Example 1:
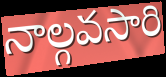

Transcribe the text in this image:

నాల్గవసారి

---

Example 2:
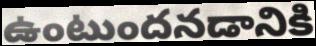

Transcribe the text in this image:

ఉంటుందనడానికి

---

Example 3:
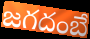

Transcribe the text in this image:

జగదంబే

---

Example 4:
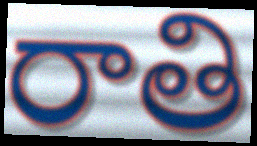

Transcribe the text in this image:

రాతి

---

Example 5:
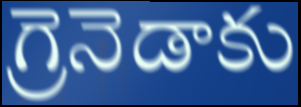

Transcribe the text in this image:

గ్రెనెడాకు